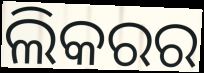
ଲିକରର